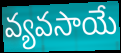
వ్యవసాయే